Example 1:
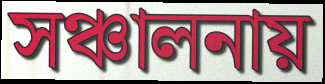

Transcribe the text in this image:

সঞ্চালনায়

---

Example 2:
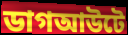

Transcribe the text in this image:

ডাগআউটে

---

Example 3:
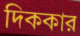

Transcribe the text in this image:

দিককার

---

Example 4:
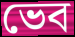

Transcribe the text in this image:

ভেব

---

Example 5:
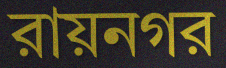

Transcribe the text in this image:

রায়নগর